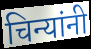
चिन्यांनी